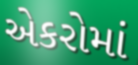
એકરોમાં